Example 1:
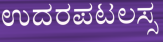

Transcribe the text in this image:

ಉದರಪಟಲಸ್ಸ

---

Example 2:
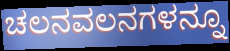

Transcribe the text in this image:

ಚಲನವಲನಗಳನ್ನೂ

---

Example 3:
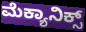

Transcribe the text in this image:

ಮೆಕ್ಯಾನಿಕ್ಸ್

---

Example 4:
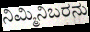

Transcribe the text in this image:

ನಿಮ್ಮಿನಿಬರನು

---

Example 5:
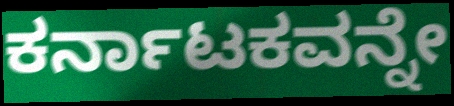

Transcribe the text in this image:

ಕರ್ನಾಟಕವನ್ನೇ